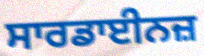
ਸਾਰਡਾਈਨਜ਼